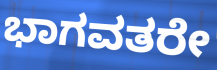
ಭಾಗವತರೇ